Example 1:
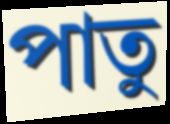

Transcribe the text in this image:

পাতু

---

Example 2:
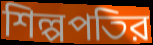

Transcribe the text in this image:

শিল্পপতির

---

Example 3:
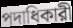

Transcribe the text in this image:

পদাধিকারী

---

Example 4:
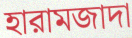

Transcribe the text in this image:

হারামজাদা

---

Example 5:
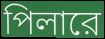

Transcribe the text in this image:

পিলারে